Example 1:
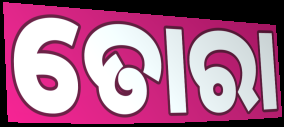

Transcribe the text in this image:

ତୋରା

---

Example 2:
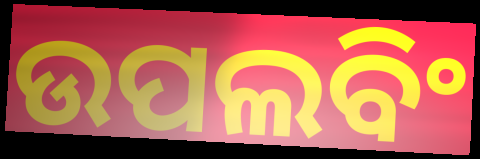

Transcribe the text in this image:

ଉପଲବିଂ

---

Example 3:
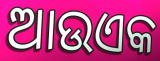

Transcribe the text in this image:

ଆଉଏକ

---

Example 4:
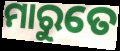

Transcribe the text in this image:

ମାରୁତେ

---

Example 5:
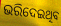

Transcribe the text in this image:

ଭରିଦେଇଥିବ